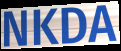
NKDA